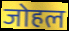
जोहल